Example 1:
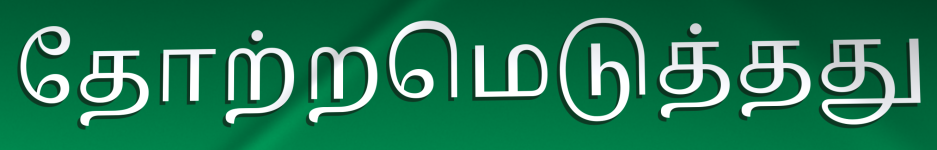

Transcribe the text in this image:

தோற்றமெடுத்தது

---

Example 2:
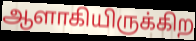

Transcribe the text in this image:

ஆளாகியிருக்கிற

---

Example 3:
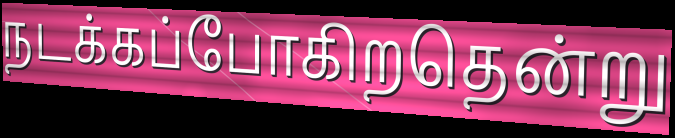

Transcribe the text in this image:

நடக்கப்போகிறதென்று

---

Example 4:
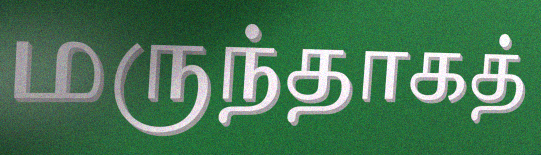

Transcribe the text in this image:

மருந்தாகத்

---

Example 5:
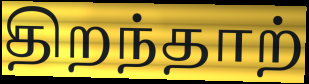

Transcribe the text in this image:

திறந்தாற்